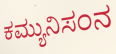
ಕಮ್ಯುನಿಸಂನ